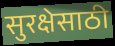
सुरक्षेसाठी